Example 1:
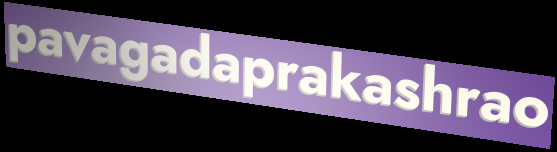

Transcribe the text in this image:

pavagadaprakashrao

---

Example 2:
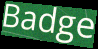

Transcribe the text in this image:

Badge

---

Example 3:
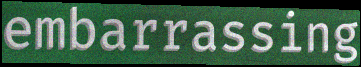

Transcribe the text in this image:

embarrassing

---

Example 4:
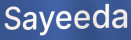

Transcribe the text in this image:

Sayeeda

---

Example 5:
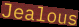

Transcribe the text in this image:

Jealous